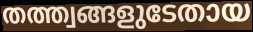
തത്ത്വങ്ങളുടേതായ